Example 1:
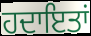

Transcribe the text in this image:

ਹਦਾਇਤਾਂ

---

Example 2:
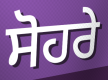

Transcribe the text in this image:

ਸੋਹਰੇ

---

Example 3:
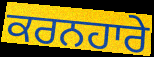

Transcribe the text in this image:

ਕਰਨਹਾਰੇ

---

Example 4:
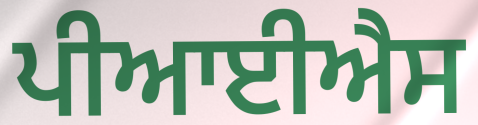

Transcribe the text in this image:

ਪੀਆਈਐਸ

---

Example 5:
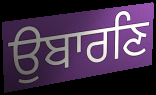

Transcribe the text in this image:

ਉਬਾਰਣਿ